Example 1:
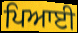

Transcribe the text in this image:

ਪਿਆਈ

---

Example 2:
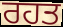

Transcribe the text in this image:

ਰਹਤ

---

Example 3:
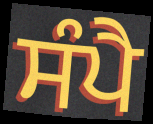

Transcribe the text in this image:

ਸੰਪੈ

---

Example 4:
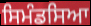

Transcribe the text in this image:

ਸਿਮੰਡਸਿਆ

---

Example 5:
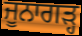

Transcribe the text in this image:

ਜੂਨਾਗੜ੍ਹ